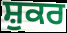
ਸ਼ੁਕਰ